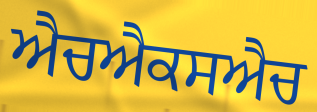
ਐਚਐਕਸਐਚ